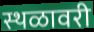
स्थळावरी